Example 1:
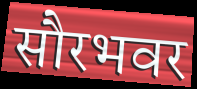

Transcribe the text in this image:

सौरभवर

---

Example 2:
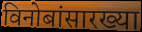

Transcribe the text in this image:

विनोबांसारख्या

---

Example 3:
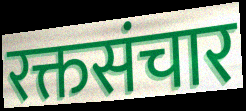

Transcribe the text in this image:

रक्तसंचार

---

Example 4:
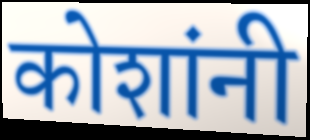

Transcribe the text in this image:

कोशांनी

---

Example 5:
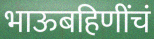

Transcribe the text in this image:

भाऊबहिणींचं